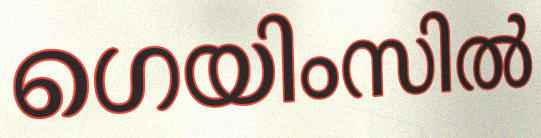
ഗെയിംസിൽ